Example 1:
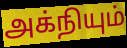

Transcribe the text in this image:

அக்நியும்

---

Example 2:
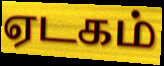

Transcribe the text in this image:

ஏடகம்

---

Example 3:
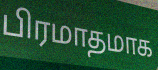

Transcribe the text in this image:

பிரமாதமாக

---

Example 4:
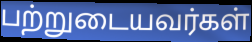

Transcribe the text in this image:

பற்றுடையவர்கள்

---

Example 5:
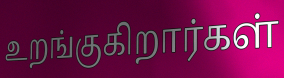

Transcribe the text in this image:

உறங்குகிறார்கள்